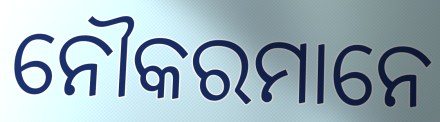
ନୌକରମାନେ